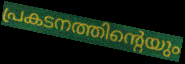
പ്രകടനത്തിന്റെയും